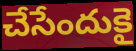
చేసేందుకై